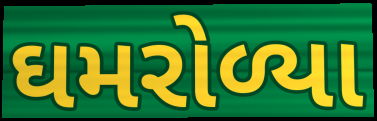
ઘમરોળ્યા